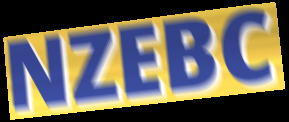
NZEBC